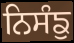
ਨਿਸੰਙੁ